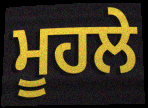
ਮੂਹਲੇ